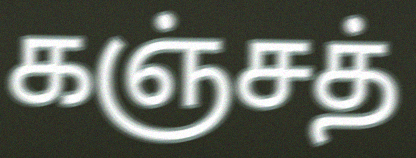
கஞ்சத்